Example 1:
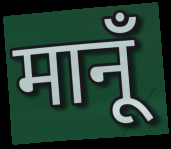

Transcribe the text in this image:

मानूँ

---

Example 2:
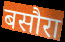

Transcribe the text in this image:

बसौरा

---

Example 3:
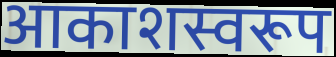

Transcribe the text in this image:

आकाशस्वरूप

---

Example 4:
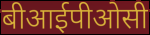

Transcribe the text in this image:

बीआईपीओसी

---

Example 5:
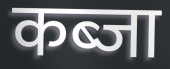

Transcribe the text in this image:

कब्‍जा